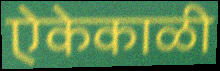
ऐकेकाळी